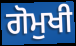
ਗੋਮੁਖੀ